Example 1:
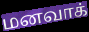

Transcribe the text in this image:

மனவாக்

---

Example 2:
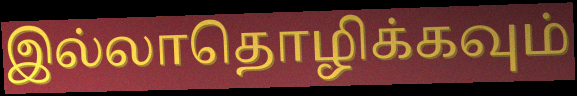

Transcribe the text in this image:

இல்லாதொழிக்கவும்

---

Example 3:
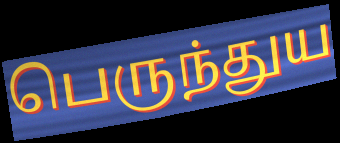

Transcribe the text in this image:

பெருந்துய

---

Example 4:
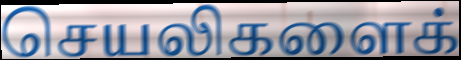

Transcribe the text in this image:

செயலிகளைக்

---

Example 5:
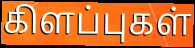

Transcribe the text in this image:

கிளப்புகள்